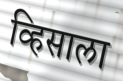
व्हिसाला